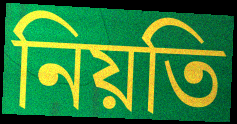
নিয়তি